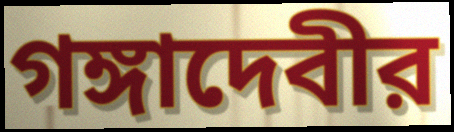
গঙ্গাদেবীর